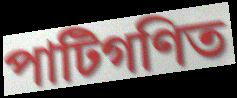
পাটিগণিত